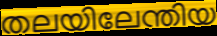
തലയിലേന്തിയ